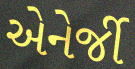
એનેર્જી